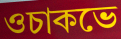
ওচাকভে